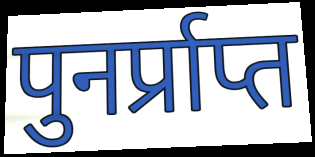
पुनर्प्राप्त